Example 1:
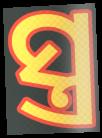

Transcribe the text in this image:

ସ୍ତ୍ର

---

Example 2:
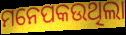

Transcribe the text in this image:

ମନେପକଉଥିଲା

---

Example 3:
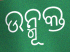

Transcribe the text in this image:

ଉନ୍ମୂକ୍ତ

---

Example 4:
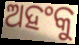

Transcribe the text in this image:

ଅହଂକୁ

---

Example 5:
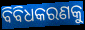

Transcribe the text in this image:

ବିବିଧକରଣକୁ